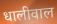
धालीवाल